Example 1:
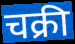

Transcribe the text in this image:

चक्री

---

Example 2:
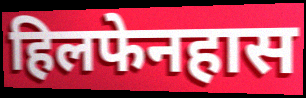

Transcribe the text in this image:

हिलफेनहास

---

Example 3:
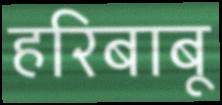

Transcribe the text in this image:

हरिबाबू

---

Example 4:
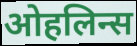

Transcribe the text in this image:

ओहलिन्स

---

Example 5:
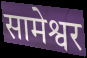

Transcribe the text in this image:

सामेश्वर